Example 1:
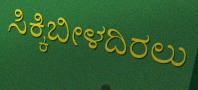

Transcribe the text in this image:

ಸಿಕ್ಕಿಬೀಳದಿರಲು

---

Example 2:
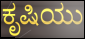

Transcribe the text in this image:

ಕೃಷಿಯು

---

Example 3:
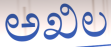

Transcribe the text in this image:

ಅಖಿಲ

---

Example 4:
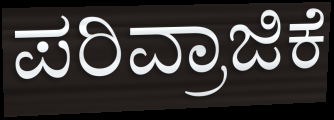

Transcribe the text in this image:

ಪರಿವ್ರಾಜಿಕೆ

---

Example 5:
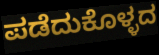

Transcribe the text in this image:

ಪಡೆದುಕೊಳ್ಳದ